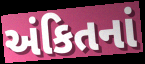
અંકિતનાં